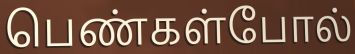
பெண்கள்போல்